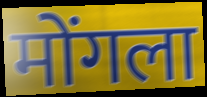
मोंगला